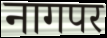
नागपर